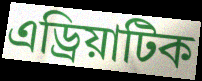
এড্ৰিয়াটিক